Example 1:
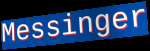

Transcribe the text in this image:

Messinger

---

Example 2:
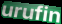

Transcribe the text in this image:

urufin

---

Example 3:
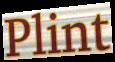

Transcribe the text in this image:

Plint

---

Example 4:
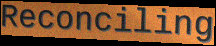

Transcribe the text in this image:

Reconciling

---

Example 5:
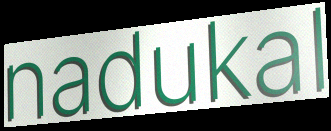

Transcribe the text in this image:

nadukal